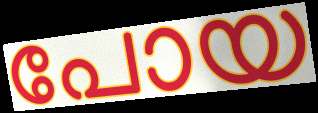
പോയ